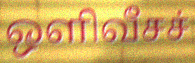
ஒளிவீசச்